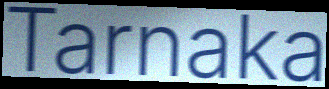
Tarnaka